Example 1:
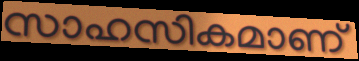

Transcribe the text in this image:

സാഹസികമാണ്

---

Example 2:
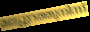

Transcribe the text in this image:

മലപ്പുറത്തുനിന്ന്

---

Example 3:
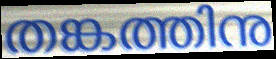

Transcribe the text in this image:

തങ്കത്തിനു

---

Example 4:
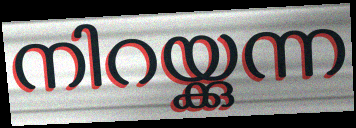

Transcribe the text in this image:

നിറയ്ക്കുന്ന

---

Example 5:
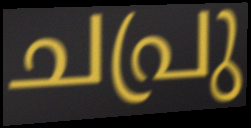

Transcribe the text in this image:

ചപ്രു